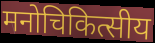
मनोचिकित्सीय